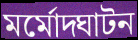
মর্মোদ্ঘাটন